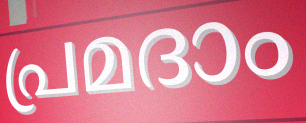
പ്രമദാം